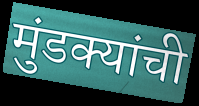
मुंडक्यांची